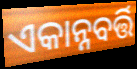
ଏକାନ୍ନବର୍ତ୍ତି